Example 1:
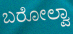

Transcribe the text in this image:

ಬರೋಲ್ವಾ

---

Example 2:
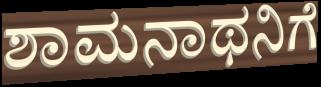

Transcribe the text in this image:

ಶಾಮನಾಥನಿಗೆ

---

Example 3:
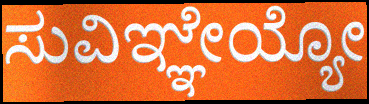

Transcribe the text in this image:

ಸುವಿಞ್ಞೇಯ್ಯೋ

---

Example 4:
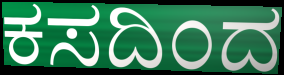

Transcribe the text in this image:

ಕಸದಿಂದ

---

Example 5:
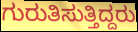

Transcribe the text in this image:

ಗುರುತಿಸುತ್ತಿದ್ದರು